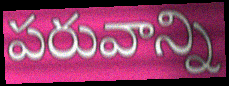
పరువాన్ని